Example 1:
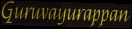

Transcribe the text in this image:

Guruvayurappan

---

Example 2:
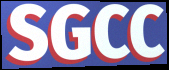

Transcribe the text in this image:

SGCC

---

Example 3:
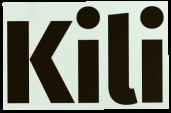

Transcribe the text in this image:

Kili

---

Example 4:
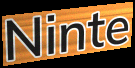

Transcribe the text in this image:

Ninte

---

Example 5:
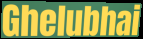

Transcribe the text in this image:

Ghelubhai